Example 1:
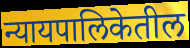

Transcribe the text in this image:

न्यायपालिकेतील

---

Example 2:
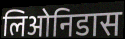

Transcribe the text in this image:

लिओनिडास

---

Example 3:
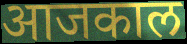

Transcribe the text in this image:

आजकाल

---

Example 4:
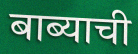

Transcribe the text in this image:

बाब्याची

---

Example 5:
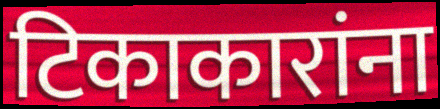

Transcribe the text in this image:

टिकाकारांना